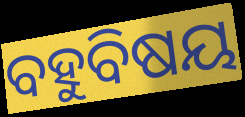
ବହୁବିଷୟ